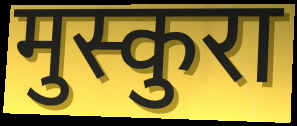
मुस्कुरा